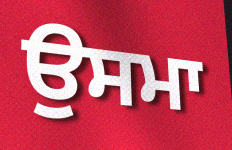
ਉਸਮਾ